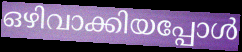
ഒഴിവാക്കിയപ്പോൾ